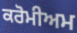
ਕਰੋਮੀਅਮ